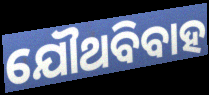
ଯୌଥବିବାହ